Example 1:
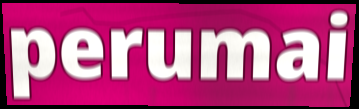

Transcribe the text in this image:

perumai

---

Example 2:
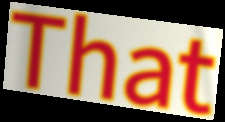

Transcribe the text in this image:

That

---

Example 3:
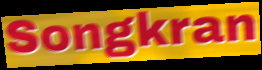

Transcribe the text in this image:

Songkran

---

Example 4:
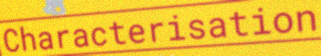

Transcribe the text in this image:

Characterisation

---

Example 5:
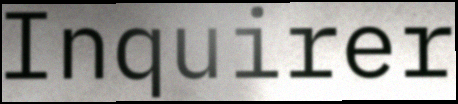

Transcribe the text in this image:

Inquirer